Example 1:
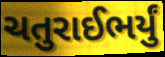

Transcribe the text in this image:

ચતુરાઈભર્યું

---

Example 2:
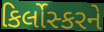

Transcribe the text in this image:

કિર્લોસ્કરને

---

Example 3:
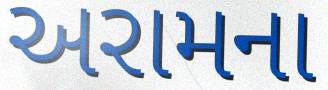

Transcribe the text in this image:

અરામના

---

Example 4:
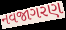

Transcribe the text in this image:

નવજાગરણ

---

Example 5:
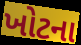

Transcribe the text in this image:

ખોટના